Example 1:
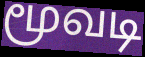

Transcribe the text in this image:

மூவடி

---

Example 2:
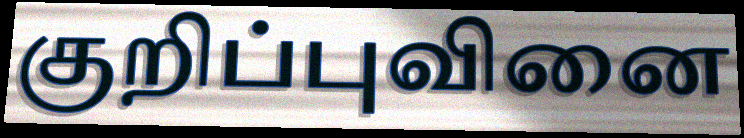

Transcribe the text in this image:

குறிப்புவினை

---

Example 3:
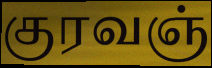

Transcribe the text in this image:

குரவஞ்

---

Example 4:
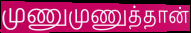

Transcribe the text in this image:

முணுமுணுத்தான்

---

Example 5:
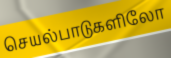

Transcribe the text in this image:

செயல்பாடுகளிலோ